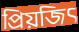
প্রিয়জিৎ